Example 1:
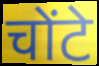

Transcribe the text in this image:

चोंटे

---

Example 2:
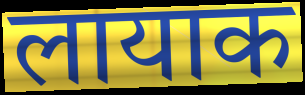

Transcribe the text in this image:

लायाक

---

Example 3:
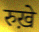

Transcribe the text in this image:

रुख़े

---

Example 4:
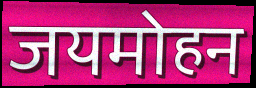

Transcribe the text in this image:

जयमोहन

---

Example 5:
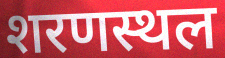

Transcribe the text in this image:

शरणस्थल